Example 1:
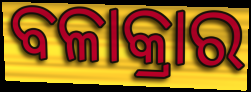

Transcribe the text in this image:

ବଳାକ୍ରାର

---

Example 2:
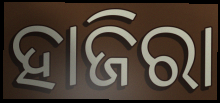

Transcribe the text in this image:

ହାଜିରା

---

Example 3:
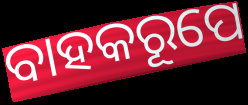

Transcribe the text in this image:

ବାହକରୂପେ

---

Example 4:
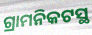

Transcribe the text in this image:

ଗ୍ରାମନିକଟସ୍ଥ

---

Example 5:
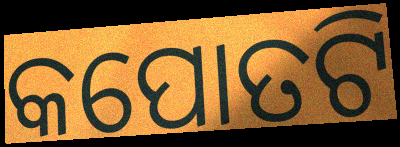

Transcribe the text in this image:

କପୋତଟି